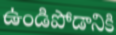
ఉండిపోడానికి